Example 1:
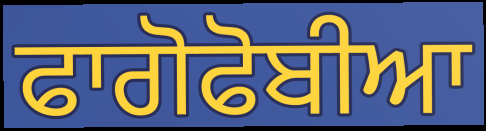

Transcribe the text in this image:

ਫਾਗੋਫੋਬੀਆ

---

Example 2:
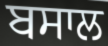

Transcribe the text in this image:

ਬਸਾਲ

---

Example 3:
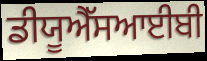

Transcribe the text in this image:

ਡੀਯੂਐੱਸਆਈਬੀ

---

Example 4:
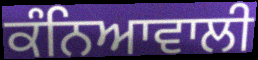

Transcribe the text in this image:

ਕੰਨਿਆਵਾਲੀ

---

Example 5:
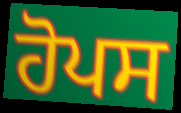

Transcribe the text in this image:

ਹੋਪਸ